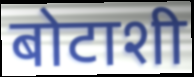
बोटाशी